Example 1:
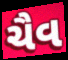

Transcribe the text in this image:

ચૈવ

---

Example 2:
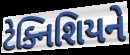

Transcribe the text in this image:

ટેક્નિશિયને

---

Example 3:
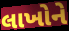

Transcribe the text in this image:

લાખોને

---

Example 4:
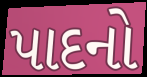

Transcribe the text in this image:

પાદનો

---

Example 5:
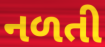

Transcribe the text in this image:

નળતી